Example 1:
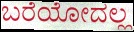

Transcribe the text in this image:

ಬರೆಯೋದಲ್ಲ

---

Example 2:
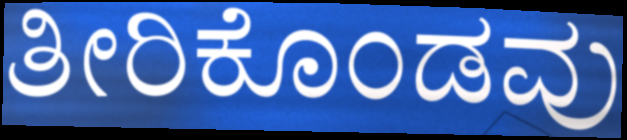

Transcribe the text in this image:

ತೀರಿಕೊಂಡವು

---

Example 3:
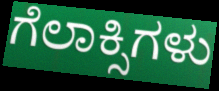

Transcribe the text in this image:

ಗೆಲಾಕ್ಸಿಗಳು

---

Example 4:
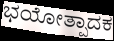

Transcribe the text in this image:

ಭಯೋತ್ಪಾದಕ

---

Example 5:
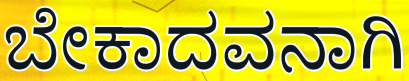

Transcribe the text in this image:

ಬೇಕಾದವನಾಗಿ